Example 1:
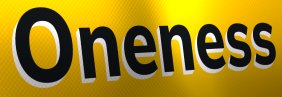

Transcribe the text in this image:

Oneness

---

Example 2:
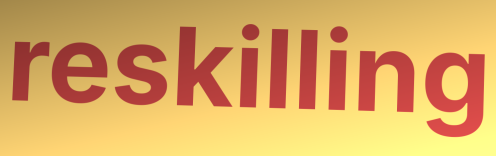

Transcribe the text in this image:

reskilling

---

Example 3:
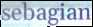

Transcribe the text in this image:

sebagian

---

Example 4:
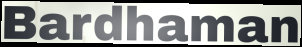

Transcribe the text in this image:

Bardhaman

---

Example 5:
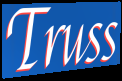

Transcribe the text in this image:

Truss